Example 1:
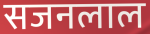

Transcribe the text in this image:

सजनलाल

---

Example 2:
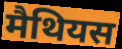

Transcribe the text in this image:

मैथियस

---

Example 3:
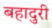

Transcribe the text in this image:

बहादुरी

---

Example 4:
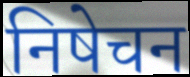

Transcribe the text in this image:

निषेचन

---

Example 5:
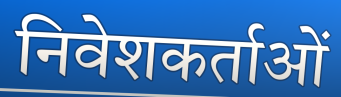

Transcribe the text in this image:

निवेशकर्ताओं